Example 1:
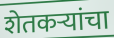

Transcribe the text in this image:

शेतकऱ्यांचा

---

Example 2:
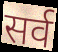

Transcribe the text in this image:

सर्व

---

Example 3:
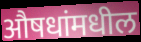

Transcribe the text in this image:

औषधांमधील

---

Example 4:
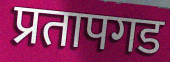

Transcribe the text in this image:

प्रतापगड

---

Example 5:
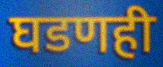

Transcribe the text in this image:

घडणही